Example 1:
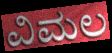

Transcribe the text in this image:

ವಿಮಲ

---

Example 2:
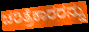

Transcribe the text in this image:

ಚರಿತ್ರೆಕಾರರನ್ನು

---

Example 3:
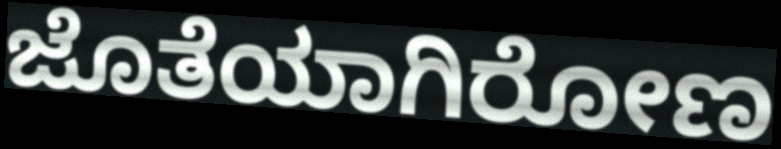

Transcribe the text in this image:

ಜೊತೆಯಾಗಿರೋಣ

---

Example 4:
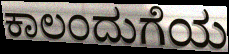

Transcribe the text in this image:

ಕಾಲಂದುಗೆಯ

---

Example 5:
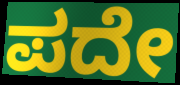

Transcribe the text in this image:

ಪದೇ